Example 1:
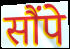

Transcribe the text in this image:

सौंपे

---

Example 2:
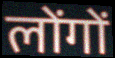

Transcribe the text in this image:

लोंगों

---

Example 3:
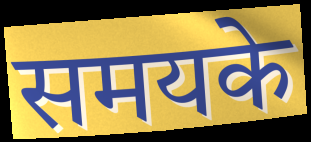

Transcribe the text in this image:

समयके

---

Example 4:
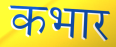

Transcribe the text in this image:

कभार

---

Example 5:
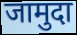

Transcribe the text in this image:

जामुदा